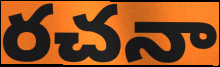
రచనా